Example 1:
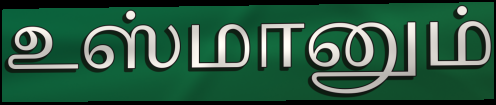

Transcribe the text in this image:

உஸ்மானும்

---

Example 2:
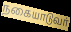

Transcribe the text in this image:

நகையாடுவர்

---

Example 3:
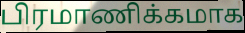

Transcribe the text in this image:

பிரமாணிக்கமாக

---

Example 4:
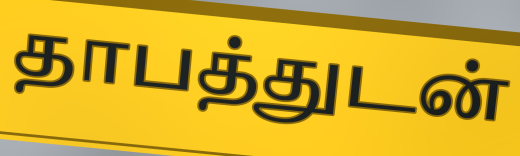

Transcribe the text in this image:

தாபத்துடன்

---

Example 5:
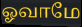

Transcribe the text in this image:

ஓவாமே